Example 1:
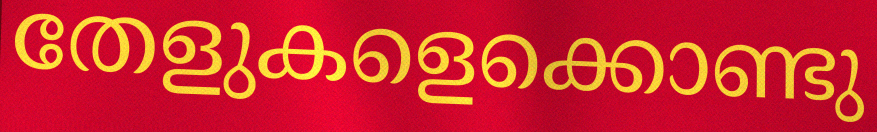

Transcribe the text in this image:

തേളുകളെക്കൊണ്ടു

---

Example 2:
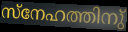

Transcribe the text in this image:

സ്നേഹത്തിനു്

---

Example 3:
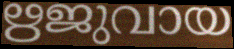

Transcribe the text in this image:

ഋജുവായ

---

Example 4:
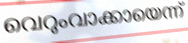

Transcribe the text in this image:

വെറുംവാക്കായെന്ന്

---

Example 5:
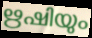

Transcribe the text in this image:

ഋഷിയും